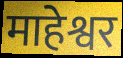
माहेश्वर